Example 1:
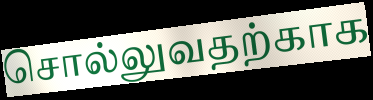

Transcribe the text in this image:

சொல்லுவதற்காக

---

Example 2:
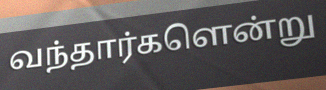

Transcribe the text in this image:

வந்தார்களென்று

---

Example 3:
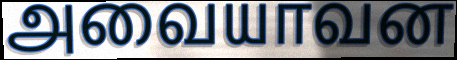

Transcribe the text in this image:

அவையாவன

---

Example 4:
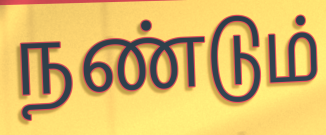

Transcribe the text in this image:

நண்டும்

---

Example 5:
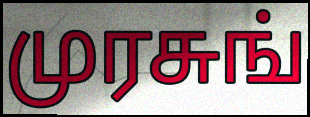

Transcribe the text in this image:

முரசுங்